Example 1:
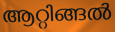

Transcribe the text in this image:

ആറ്റിങ്ങൽ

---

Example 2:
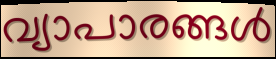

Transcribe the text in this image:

വ്യാപാരങ്ങൾ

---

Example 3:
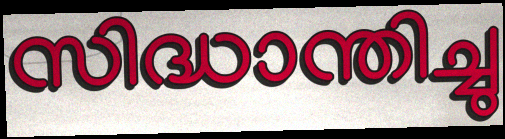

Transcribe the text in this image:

സിദ്ധാന്തിച്ചു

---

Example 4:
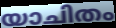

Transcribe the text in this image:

യാചിതം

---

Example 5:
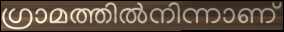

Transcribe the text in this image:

ഗ്രാമത്തിൽനിന്നാണ്